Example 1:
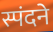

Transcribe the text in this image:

स्पंदने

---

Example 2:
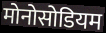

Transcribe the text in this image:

मोनोसोडियम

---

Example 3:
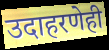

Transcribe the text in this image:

उदाहरणेही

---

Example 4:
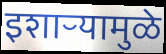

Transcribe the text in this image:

इशाऱ्यामुळे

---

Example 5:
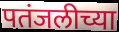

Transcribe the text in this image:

पतंजलीच्या